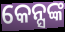
କେନ୍ସଙ୍କ